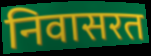
निवासरत